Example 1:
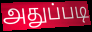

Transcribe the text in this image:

அதுப்படி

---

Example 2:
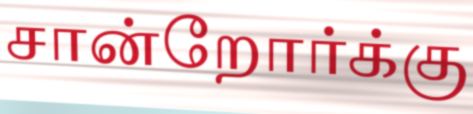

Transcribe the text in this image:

சான்றோர்க்கு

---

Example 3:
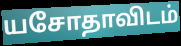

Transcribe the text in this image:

யசோதாவிடம்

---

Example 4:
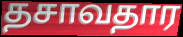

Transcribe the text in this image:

தசாவதார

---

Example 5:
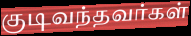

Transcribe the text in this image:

குடிவந்தவர்கள்